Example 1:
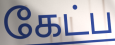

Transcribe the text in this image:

கேட்ப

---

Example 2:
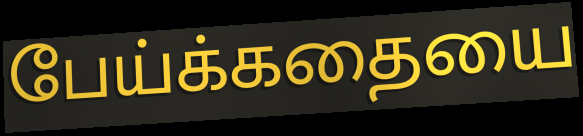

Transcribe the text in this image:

பேய்க்கதையை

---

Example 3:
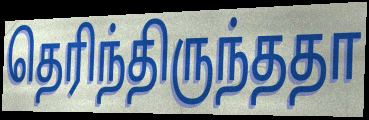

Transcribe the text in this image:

தெரிந்திருந்ததா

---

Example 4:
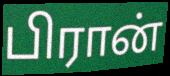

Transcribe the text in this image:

பிரான்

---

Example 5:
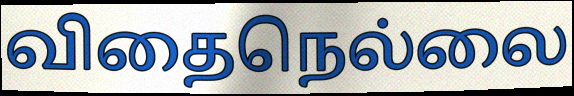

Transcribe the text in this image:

விதைநெல்லை